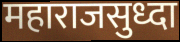
महाराजसुध्दा